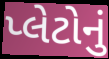
પ્લેટોનું